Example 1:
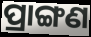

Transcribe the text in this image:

ପ୍ରାଙ୍ଗଣ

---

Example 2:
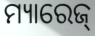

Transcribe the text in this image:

ମ୍ୟାରେଜ୍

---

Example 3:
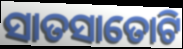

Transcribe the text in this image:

ସାତସାତୋଟି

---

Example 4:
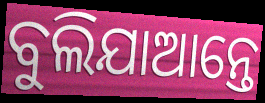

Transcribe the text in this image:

ବୁଲିଯାଆନ୍ତେ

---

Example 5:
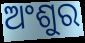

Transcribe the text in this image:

ଅଂଶୁର